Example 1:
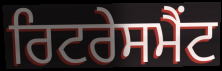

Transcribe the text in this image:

ਰਿਟਰੇਸਮੈਂਟ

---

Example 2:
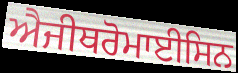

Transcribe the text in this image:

ਐਜੀਥਰੋਮਾਈਸਿਨ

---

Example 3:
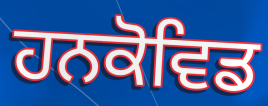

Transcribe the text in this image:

ਹਨਕੋਵਿਡ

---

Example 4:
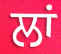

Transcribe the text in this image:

ਲਾਂ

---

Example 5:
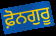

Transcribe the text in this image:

ਫ਼ੋਨਗੁਰੂ